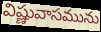
విష్ణువాసమును